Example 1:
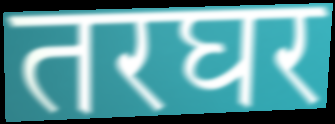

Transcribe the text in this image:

तरघर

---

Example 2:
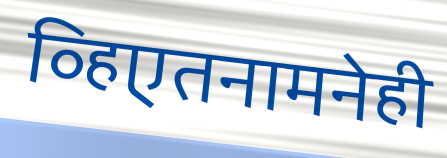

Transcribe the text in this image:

व्हिएतनामनेही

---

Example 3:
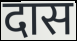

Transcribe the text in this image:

दास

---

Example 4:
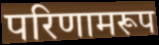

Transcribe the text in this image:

परिणामरूप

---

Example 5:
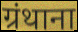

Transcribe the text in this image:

ग्रंथाना